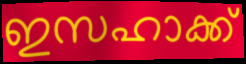
ഇസഹാക്ക്